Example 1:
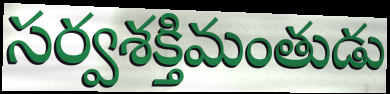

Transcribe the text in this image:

సర్వశక్తిమంతుడు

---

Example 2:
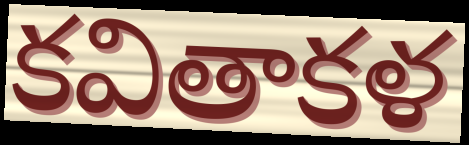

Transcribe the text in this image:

కవితాకళ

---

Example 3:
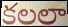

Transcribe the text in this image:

కలలా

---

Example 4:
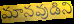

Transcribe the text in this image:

మానవుడిని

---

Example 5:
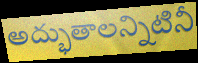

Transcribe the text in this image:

అద్భుతాలన్నిటినీ